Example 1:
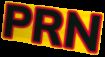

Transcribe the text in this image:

PRN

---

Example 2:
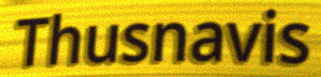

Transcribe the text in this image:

Thusnavis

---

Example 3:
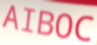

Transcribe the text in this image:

AIBOC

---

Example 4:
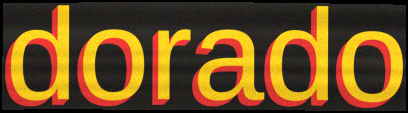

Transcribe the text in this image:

dorado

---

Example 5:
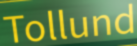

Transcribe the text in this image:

Tollund